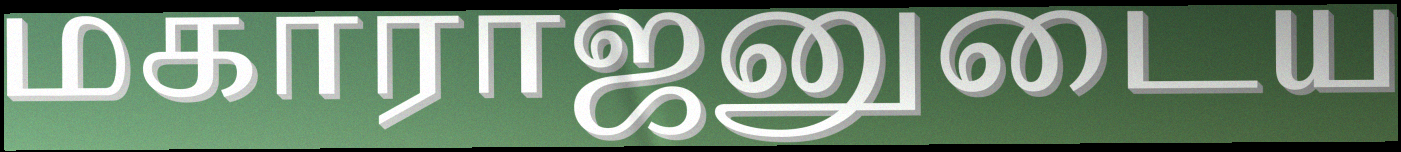
மகாராஜனுடைய